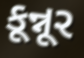
કૂન્નૂર